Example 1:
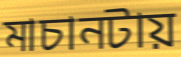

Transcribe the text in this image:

মাচানটায়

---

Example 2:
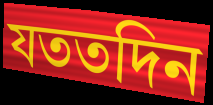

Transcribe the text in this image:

যততদিন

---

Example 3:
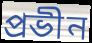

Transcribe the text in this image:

প্রভীন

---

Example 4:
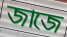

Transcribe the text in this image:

জাজে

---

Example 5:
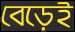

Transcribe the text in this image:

বেড়েই